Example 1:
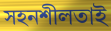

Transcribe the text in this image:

সহনশীলতাই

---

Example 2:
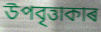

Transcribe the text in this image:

উপবৃত্তাকাৰ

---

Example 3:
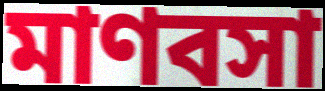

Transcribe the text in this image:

মাণবসা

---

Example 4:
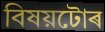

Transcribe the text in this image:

বিষয়টোৰ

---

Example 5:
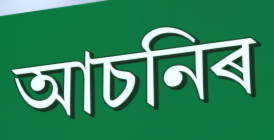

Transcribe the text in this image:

আচনিৰ